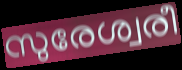
സുരേശ്വരീ